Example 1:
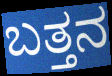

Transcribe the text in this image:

ಬತ್ತನ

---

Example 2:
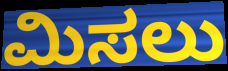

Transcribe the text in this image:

ಮಿಸಲು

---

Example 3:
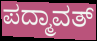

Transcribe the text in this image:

ಪದ್ಮಾವತ್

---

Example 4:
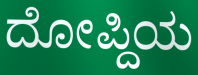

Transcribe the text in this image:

ದೋಪ್ದಿಯ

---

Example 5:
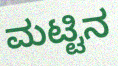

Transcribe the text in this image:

ಮಟ್ಟಿನ